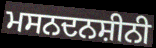
ਮਸਨਦਨਸ਼ੀਨੀ